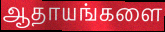
ஆதாயங்களை